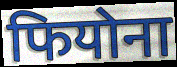
फियोना